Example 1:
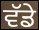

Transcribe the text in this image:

ਵੱਡੇ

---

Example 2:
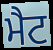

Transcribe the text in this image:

ਮੈਟ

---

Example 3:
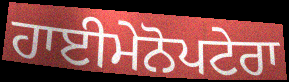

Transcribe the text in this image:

ਹਾਈਮੇਨੋਪਟੇਰਾ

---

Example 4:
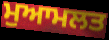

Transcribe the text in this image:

ਮੁਆਮਲਤ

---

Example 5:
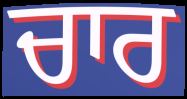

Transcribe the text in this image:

ਚਾਰ